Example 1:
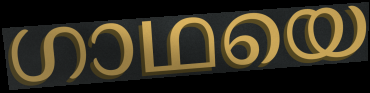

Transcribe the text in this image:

ഗാഥയെ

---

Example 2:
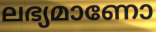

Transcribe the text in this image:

ലഭ്യമാണോ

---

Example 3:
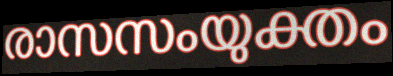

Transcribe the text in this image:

രാസസംയുക്തം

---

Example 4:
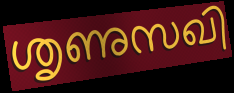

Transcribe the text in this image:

ശൃണുസഖി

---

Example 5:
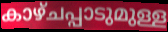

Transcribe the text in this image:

കാഴ്ചപ്പാടുമുള്ള